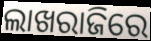
ଲାଖରାଜିରେ